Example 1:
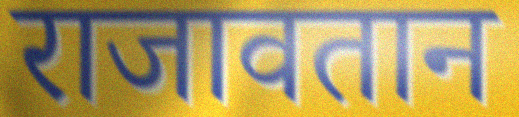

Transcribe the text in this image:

राजावतान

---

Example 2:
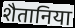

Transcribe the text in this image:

शैतानिया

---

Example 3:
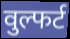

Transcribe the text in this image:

वुल्फर्ट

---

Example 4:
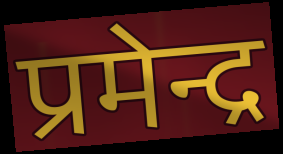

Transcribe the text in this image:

प्रमेन्द्र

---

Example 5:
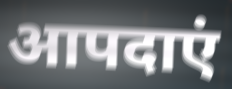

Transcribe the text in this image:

आपदाएं